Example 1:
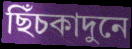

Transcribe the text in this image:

ছিঁচকাদুনে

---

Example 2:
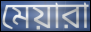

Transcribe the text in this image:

মেয়ারা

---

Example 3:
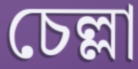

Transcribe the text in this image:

চেল্লা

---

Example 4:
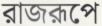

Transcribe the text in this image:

রাজরূপে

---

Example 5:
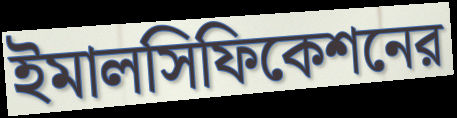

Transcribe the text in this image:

ইমালসিফিকেশনের